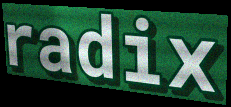
radix